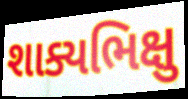
શાક્યભિક્ષુ